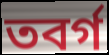
তবর্গ